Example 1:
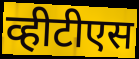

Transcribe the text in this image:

व्हीटीएस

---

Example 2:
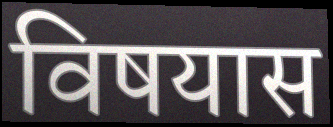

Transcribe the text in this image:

विषयास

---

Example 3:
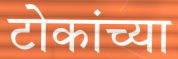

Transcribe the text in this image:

टोकांच्या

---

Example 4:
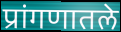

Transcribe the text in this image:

प्रांगणातले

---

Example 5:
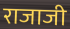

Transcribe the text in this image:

राजाजी